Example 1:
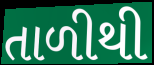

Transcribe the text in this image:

તાળીથી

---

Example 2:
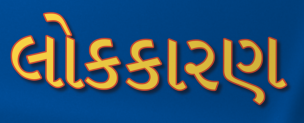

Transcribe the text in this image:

લોકકારણ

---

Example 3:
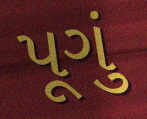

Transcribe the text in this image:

પૂગું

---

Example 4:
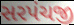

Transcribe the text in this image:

સરપંચજી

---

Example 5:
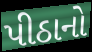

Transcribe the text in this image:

પીઠાનો